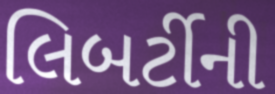
લિબર્ટીની